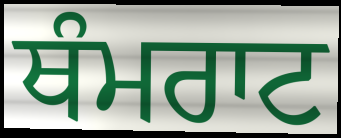
ਥੰਮਰਾਟ